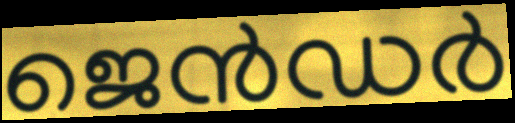
ജെൻഡർ